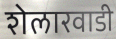
शेलारवाडी